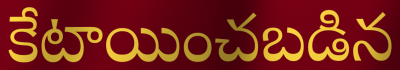
కేటాయించబడిన